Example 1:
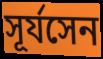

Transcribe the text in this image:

সূর্যসেন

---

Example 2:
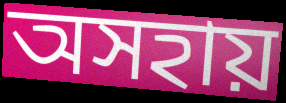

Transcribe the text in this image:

অসহায়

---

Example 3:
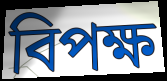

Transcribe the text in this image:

বিপক্ষ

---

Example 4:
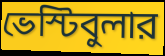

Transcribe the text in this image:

ভেস্টিবুলার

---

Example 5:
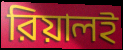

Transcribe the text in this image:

রিয়ালই